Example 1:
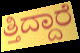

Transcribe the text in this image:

ತ್ತಿದ್ದಾರೆ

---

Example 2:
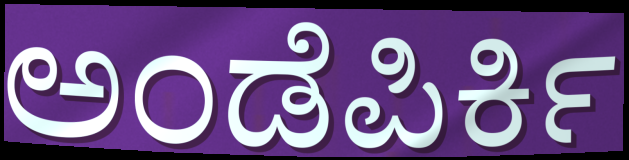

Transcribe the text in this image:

ಅಂಡೆಪಿರ್ಕಿ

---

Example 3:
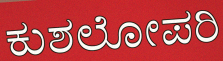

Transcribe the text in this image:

ಕುಶಲೋಪರಿ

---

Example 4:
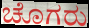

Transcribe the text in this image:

ಚೊಗರು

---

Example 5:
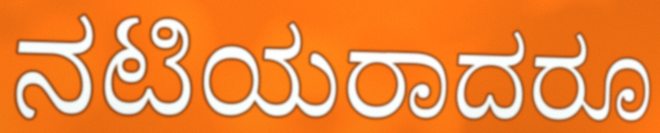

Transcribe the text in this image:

ನಟಿಯರಾದರೂ